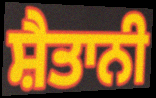
ਸ਼ੈਤਾਨੀ